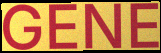
GENE